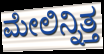
ಮೇಲಿನ್ನಿತ್ತ